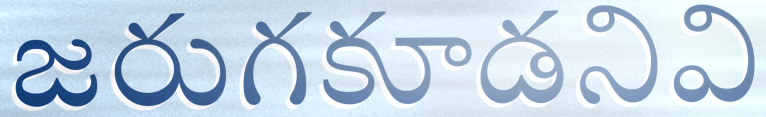
జరుగకూడనివి